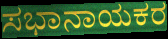
ಸಭಾನಾಯಕರ